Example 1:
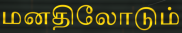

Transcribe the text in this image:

மனதிலோடும்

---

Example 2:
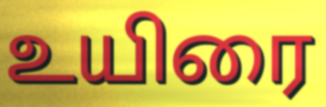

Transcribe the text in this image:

உயிரை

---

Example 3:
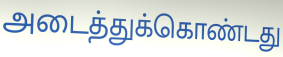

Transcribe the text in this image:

அடைத்துக்கொண்டது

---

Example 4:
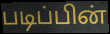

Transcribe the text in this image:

படிப்பின்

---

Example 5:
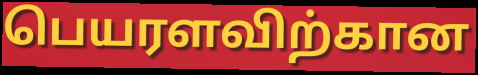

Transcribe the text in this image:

பெயரளவிற்கான